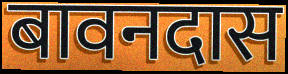
बावनदास